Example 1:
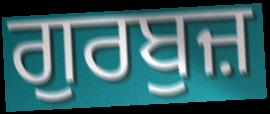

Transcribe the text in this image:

ਗੁਰਬੁਜ਼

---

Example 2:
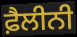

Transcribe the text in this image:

ਫ਼ੈਲੀਨੀ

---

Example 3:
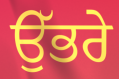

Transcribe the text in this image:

ਉੱਭਰੇ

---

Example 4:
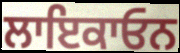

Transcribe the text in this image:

ਲਾਇਕਾਓਨ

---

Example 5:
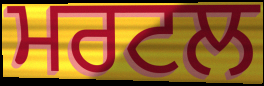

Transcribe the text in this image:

ਮਰਟਲ